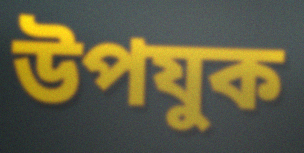
উপযুক